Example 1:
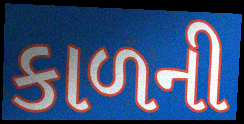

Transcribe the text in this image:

કાળની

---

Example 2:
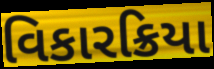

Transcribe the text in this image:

વિકારક્રિયા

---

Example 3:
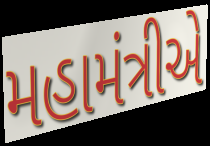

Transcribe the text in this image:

મહામંત્રીએ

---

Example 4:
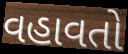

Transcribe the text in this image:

વહાવતો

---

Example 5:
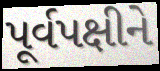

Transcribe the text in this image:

પૂર્વપક્ષીને